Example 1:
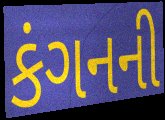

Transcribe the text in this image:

કંગનની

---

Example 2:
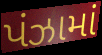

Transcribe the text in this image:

પંઝામાં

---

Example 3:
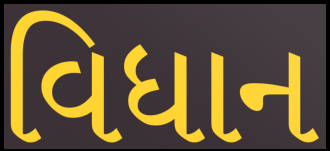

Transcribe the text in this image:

વિધાન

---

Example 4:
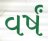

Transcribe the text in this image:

વર્ષં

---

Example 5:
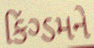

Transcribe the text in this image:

કિંગ્ડમને